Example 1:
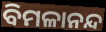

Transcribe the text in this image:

ବିମଳାନନ୍ଦ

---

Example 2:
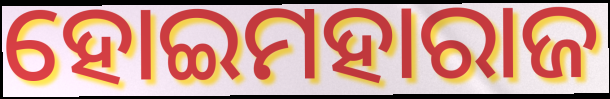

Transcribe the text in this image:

ହୋଇମହାରାଜ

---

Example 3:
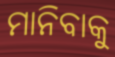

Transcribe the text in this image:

ମାନିବାକୁ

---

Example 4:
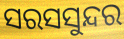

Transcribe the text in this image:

ସରସସୁନ୍ଦର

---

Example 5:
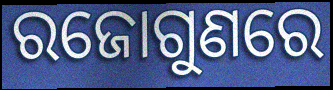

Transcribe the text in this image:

ରଜୋଗୁଣରେ